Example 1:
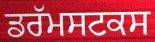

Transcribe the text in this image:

ਡਰੱਮਸਟਕਸ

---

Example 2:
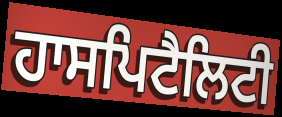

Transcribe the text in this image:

ਹਾਸਪਿਟੈਲਿਟੀ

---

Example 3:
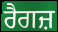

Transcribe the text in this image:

ਰੈਗਜ਼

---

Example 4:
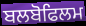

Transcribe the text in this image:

ਬਲਬੋਫਿਲਮ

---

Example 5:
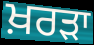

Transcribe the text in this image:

ਖ਼ਰੜਾ